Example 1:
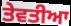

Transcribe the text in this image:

ਤੇਵਤੀਆ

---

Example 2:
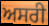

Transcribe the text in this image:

ਅਸਰੀ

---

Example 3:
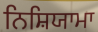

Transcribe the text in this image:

ਨਿਸ਼ਿਯਾਮਾ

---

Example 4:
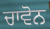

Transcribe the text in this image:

ਚਾਵੋਨ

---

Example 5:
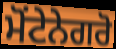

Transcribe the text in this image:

ਮੋਂਟੇਨੇਗਰੋ